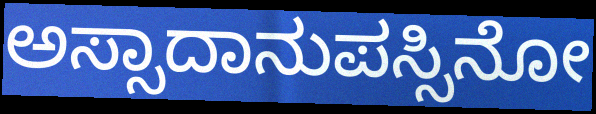
ಅಸ್ಸಾದಾನುಪಸ್ಸಿನೋ